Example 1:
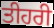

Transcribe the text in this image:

ਤੀਹਰੀ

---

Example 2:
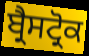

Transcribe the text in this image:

ਬ੍ਰੈਸਟ੍ਰੋਕ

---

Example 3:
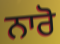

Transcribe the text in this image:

ਨਾਰੋ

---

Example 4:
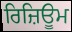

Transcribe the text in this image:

ਰਿਜ਼ਿਊਮ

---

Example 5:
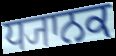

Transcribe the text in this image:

ਧ੍ਯਾਨਕ